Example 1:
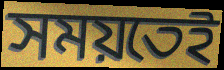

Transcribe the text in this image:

সময়তেই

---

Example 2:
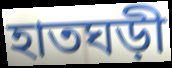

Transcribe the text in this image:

হাতঘড়ী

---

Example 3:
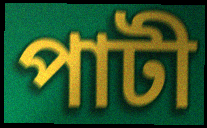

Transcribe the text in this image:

পাটী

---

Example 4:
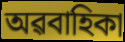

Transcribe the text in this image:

অৱবাহিকা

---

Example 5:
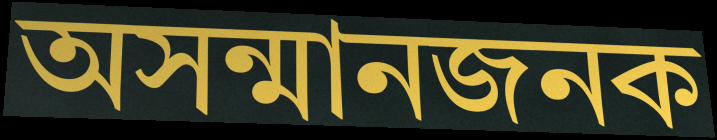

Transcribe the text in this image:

অসন্মানজনক